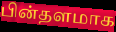
பின்தளமாக